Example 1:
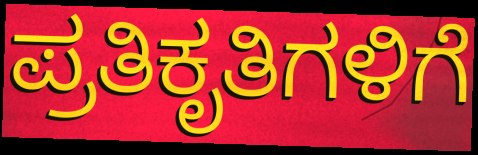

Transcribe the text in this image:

ಪ್ರತಿಕೃತಿಗಳಿಗೆ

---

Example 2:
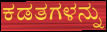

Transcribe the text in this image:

ಕಡತಗಳನ್ನು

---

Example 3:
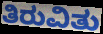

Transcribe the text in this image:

ತಿರುವಿತು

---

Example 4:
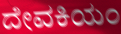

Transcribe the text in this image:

ದೇವಕಿಯಂ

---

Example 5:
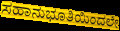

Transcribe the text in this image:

ಸಹಾನುಭೂತಿಯಿಂದಲೇ